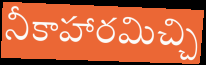
నీకాహారమిచ్చి